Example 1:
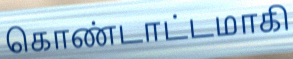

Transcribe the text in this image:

கொண்டாட்டமாகி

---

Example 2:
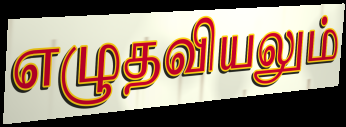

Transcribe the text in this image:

எழுதவியலும்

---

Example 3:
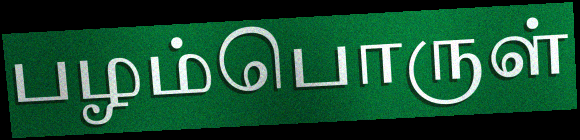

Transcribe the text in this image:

பழம்பொருள்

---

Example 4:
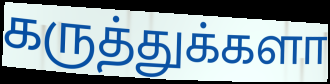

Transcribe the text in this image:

கருத்துக்களா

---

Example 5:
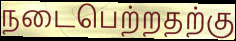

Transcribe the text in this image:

நடைபெற்றதற்கு